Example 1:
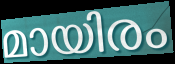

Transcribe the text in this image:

മായിരം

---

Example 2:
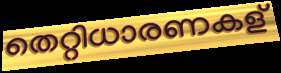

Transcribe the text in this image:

തെറ്റിധാരണകള്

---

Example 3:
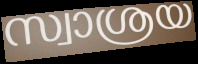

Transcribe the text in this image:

സ്വാശ്രയ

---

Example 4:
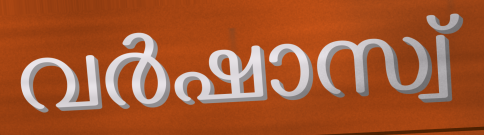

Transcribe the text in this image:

വർഷാസ്വ്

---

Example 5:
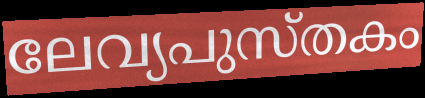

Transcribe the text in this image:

ലേവ്യപുസ്തകം